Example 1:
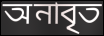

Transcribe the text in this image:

অনাবৃত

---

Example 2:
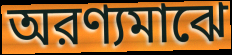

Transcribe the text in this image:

অরণ্যমাঝে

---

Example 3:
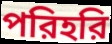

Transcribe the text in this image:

পরিহরি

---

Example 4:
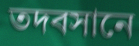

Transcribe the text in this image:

তদবসানে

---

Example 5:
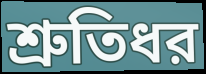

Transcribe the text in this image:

শ্রুতিধর